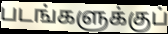
படங்களுக்குப்